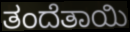
ತಂದೆತಾಯಿ